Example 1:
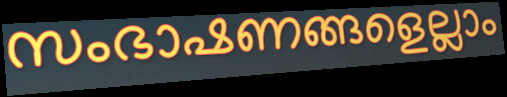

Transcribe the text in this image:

സംഭാഷണങ്ങളെല്ലാം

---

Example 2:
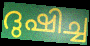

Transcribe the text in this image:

ദുഷിച്ച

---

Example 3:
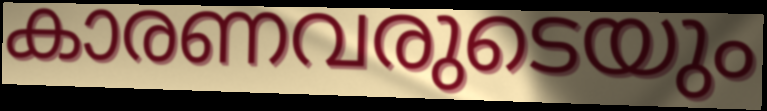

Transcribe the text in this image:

കാരണവരുടെയും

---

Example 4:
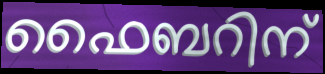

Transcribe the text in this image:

ഫൈബറിന്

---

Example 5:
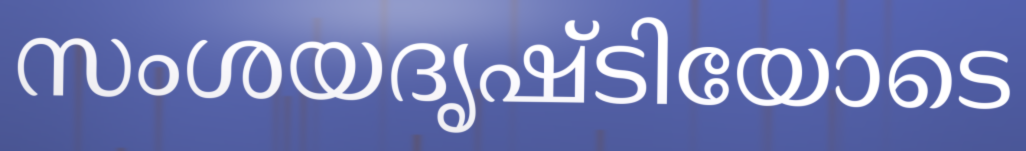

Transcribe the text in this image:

സംശയദൃഷ്ടിയോടെ